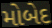
મોબેદ